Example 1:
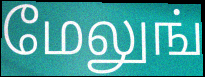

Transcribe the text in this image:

மேலுங்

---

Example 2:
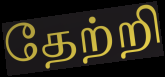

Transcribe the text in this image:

தேற்றி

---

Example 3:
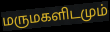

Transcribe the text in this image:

மருமகளிடமும்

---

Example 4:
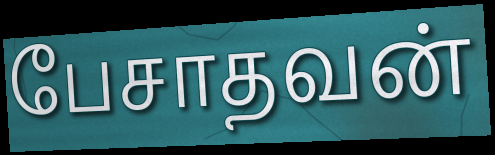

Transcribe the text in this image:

பேசாதவன்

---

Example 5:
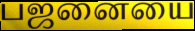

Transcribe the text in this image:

பஜனையை